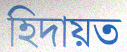
হিদায়ত